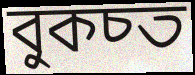
বুকচ্ত